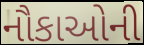
નૌકાઓની